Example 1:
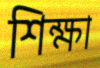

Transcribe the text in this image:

শিক্ষা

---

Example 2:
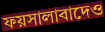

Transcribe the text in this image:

ফয়সালাবাদেও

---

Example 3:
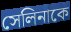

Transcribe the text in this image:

সেলিনাকে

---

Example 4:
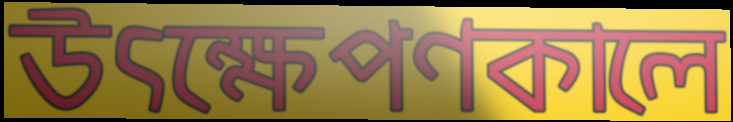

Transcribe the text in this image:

উৎক্ষেপণকালে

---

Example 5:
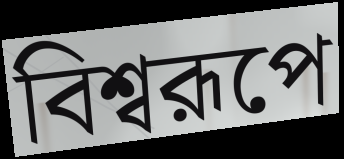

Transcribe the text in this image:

বিশ্বরূপে